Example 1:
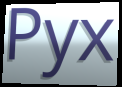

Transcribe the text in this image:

Pyx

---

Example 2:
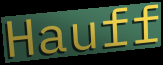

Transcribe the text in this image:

Hauff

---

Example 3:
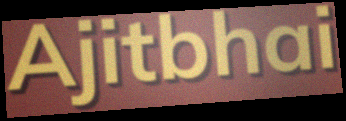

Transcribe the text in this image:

Ajitbhai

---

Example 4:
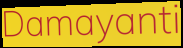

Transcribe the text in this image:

Damayanti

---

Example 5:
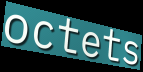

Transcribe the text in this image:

octets